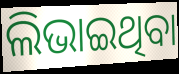
ଲିଭାଇଥିବା